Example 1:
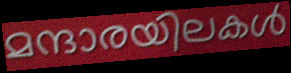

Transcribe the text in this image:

മന്ദാരയിലകൾ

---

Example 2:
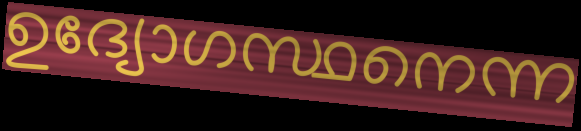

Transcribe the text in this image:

ഉദ്യോഗസ്ഥനെന്ന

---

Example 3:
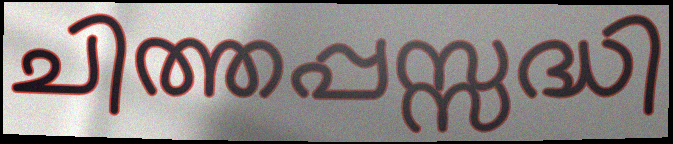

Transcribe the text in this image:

ചിത്തപ്പസ്സദ്ധി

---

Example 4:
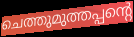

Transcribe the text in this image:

ചെത്തുമുത്തപ്പന്റെ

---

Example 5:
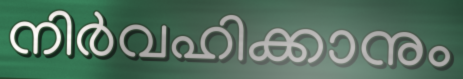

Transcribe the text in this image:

നിർവഹിക്കാനും